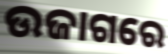
ଉଜାଗରେ